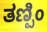
ತಣ್ಪಿಂ